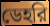
ডেহরি